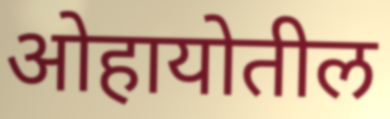
ओहायोतील